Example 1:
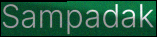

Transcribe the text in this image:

Sampadak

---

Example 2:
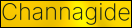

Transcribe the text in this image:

Channagide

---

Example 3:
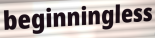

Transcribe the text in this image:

beginningless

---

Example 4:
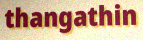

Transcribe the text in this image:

thangathin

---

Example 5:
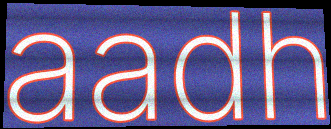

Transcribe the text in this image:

aadh